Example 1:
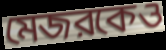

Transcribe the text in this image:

মেজরকেও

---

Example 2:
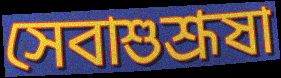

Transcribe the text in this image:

সেবাশুশ্রূষা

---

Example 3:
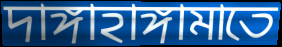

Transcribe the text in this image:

দাঙ্গাহাঙ্গামাতে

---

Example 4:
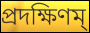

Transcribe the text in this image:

প্রদক্ষিণম্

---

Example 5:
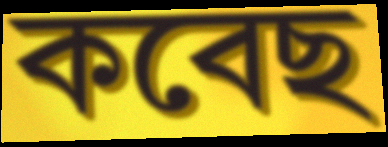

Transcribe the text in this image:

কবেছ